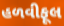
હળવીફૂલ